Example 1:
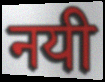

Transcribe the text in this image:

नयी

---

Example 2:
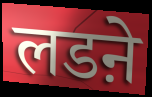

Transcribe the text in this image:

लडऩे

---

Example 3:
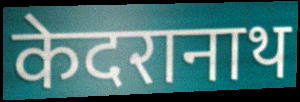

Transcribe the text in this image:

केदरानाथ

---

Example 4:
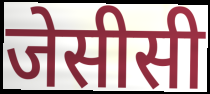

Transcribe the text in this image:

जेसीसी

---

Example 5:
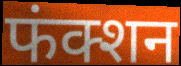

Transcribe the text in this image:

फंक्शन